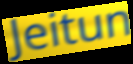
Jeitun